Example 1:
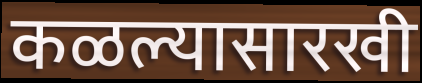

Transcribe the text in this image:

कळल्यासारखी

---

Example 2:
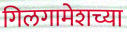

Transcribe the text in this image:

गिलगामेशच्या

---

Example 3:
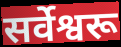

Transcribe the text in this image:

सर्वेश्वरू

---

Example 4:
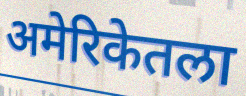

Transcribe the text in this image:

अमेरिकेतला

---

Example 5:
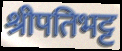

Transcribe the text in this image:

श्रीपतिभट्ट